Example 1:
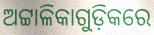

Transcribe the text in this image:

ଅଟ୍ଟାଳିକାଗୁଡ଼ିକରେ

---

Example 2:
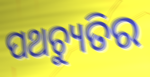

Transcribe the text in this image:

ପଥଚ୍ୟୁତିର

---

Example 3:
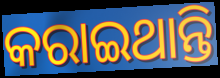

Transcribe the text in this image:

କରାଇଥାନ୍ତି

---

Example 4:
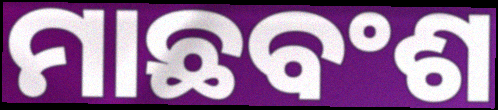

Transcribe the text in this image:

ମାଛବଂଶ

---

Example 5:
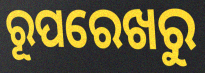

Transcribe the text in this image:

ରୂପରେଖରୁ